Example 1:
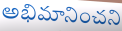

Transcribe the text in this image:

అభిమానించని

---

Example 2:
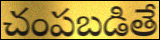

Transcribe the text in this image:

చంపబడితే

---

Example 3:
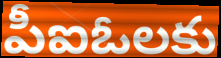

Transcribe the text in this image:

పీఐఓలకు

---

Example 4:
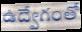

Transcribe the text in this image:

ఉద్వేగంతో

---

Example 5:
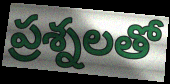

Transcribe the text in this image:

ప్రశ్నలతో